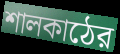
শালকাঠের